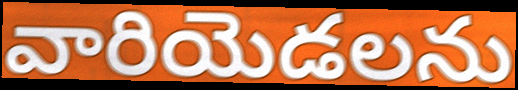
వారియెడలను